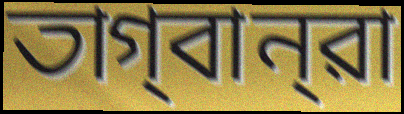
তাগ্‌বান্‌ৱা